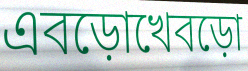
এবড়োখেবড়ো